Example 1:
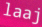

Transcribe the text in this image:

laaj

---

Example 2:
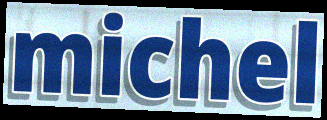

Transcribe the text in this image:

michel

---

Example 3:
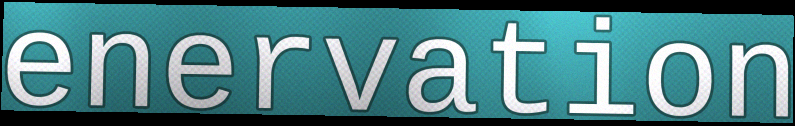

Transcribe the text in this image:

enervation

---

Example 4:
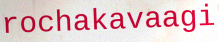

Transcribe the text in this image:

rochakavaagi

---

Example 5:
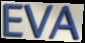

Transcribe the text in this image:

EVA